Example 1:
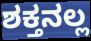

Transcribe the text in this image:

ಶಕ್ತನಲ್ಲ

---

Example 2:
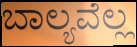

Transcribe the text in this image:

ಬಾಲ್ಯವೆಲ್ಲ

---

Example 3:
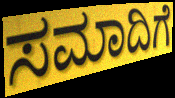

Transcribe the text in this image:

ಸಮಾದಿಗೆ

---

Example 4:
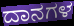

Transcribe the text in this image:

ದಾನಗಳ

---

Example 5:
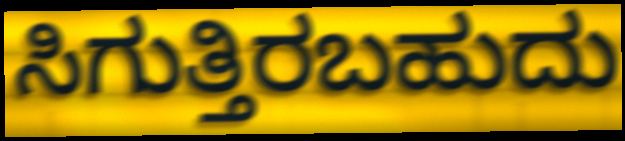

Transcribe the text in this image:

ಸಿಗುತ್ತಿರಬಹುದು